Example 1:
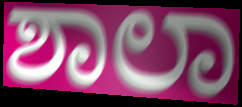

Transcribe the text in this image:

ಶಾಲಾ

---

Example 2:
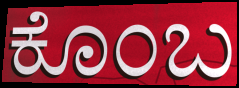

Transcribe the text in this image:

ಕೊಂಬ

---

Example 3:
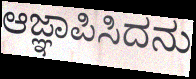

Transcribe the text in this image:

ಆಜ್ಞಾಪಿಸಿದನು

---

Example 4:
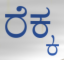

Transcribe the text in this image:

ರೆಕ್ಕ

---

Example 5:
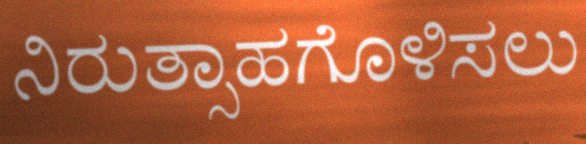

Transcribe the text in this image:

ನಿರುತ್ಸಾಹಗೊಳಿಸಲು